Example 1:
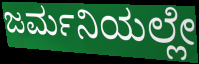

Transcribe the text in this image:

ಜರ್ಮನಿಯಲ್ಲೇ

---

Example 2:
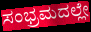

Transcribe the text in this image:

ಸಂಭ್ರಮದಲ್ಲೇ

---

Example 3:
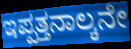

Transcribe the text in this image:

ಇಪ್ಪತ್ತನಾಲ್ಕನೇ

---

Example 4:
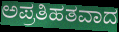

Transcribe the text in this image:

ಅಪ್ರತಿಹತವಾದ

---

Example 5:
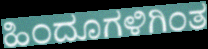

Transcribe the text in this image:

ಹಿಂದೂಗಳಿಗಿಂತ